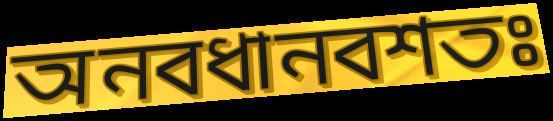
অনবধানবশতঃ